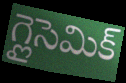
గ్లైసెమిక్